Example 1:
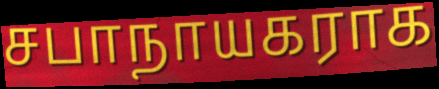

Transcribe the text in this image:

சபாநாயகராக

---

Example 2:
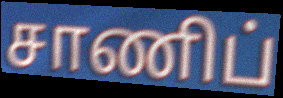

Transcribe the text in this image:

சாணிப்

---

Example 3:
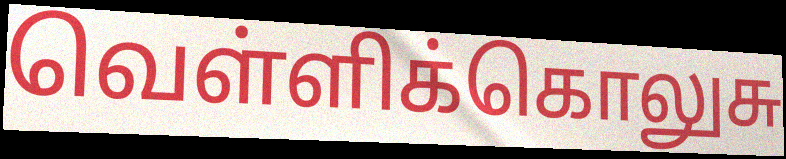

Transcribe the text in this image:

வெள்ளிக்கொலுசு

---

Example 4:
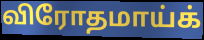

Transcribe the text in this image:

விரோதமாய்க்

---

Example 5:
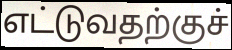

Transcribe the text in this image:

எட்டுவதற்குச்